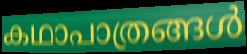
കഥാപാത്രങ്ങൾ